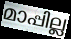
മാപ്പില്ല